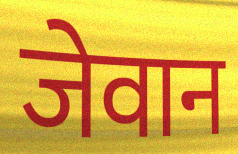
जेवान